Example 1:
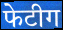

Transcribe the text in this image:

फेटीग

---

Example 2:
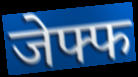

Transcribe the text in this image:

जेफ्फ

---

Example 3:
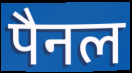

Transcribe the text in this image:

पैनल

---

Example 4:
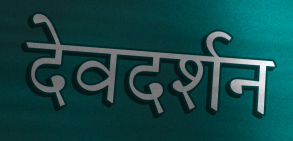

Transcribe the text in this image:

देवदर्शन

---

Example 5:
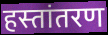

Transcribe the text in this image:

हस्तांतरण